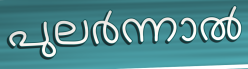
പുലർന്നാൽ